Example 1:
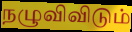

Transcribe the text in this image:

நழுவிவிடும்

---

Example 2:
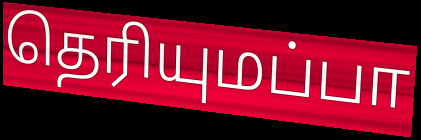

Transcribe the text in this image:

தெரியுமப்பா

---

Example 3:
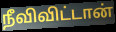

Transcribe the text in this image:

நீவிவிட்டான்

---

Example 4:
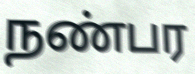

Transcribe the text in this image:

நண்பர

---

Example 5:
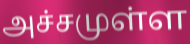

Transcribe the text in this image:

அச்சமுள்ள